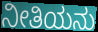
ನೀತಿಯನು